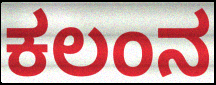
ಕಲಂನ